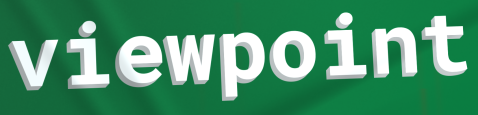
viewpoint